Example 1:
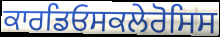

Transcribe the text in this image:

ਕਾਰਡਿਓਸਕਲੇਰੋਸਿਸ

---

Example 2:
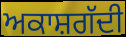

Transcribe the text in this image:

ਅਕਾਸ਼ਗੱਦੀ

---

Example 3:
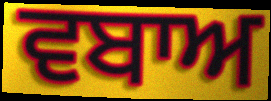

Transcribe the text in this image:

ਵਬਾਅ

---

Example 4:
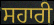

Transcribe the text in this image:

ਸਹਾਰੀ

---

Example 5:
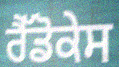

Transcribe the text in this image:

ਰੈੱਡੋਕੇਸ